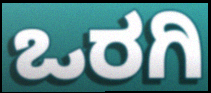
ಒರಗಿ